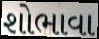
શોભાવા